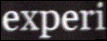
experi